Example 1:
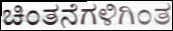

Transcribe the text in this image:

ಚಿಂತನೆಗಳಿಗಿಂತ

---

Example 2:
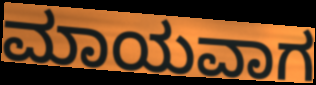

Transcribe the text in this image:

ಮಾಯವಾಗ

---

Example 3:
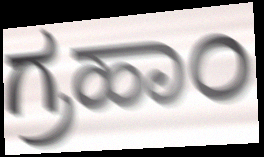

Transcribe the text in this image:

ಗ್ರಹಾಂ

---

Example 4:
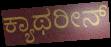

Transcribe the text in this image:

ಕ್ಯಾಥರೀನ್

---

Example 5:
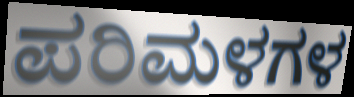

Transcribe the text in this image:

ಪರಿಮಳಗಳ